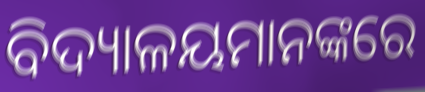
ବିଦ୍ୟାଳୟମାନଙ୍କରେ